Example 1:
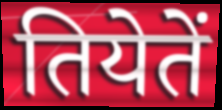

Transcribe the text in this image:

तियेतें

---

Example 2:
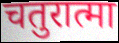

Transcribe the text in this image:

चतुरात्मा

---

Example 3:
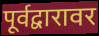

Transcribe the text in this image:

पूर्वद्वारावर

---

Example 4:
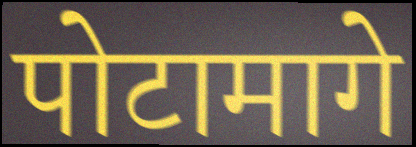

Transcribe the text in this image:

पोटामागे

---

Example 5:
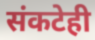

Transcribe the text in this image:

संकटेही